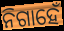
ନିଗାହେଁ